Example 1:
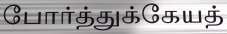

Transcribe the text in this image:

போர்த்துக்கேயத்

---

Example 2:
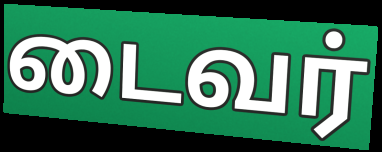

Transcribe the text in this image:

டைவர்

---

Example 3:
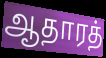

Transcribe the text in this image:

ஆதாரத்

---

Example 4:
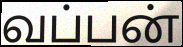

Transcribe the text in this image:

வப்பன்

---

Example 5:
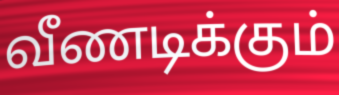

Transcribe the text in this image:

வீணடிக்கும்